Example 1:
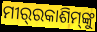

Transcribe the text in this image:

ମୀର୍‌ରକାଶିମ୍‌ଙ୍କୁ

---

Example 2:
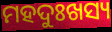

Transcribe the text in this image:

ମହଦୁଃଖସ୍ୟ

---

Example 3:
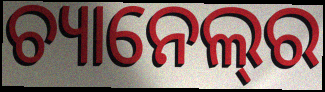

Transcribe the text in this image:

ଚ୍ୟାନେଲ୍‌ର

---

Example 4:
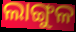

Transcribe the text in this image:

ଲାଙ୍ଗୁଳ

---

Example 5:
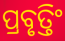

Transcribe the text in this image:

ପ୍ରବୃତ୍ତିଂ